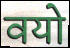
वयो